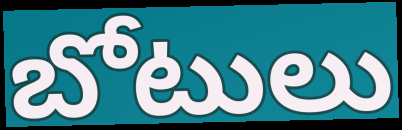
బోటులు